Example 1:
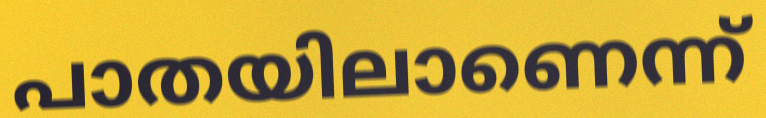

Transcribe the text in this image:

പാതയിലാണെന്ന്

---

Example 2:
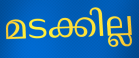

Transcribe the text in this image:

മടക്കില്ല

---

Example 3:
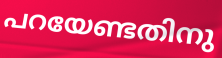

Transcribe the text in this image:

പറയേണ്ടതിനു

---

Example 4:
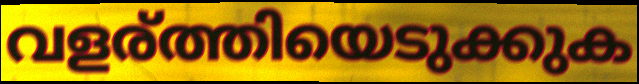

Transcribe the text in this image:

വളര്ത്തിയെടുക്കുക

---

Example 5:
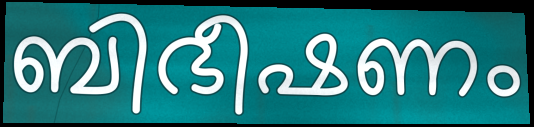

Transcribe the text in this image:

ബിഭീഷണം